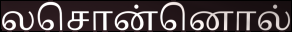
லசொன்னொல்